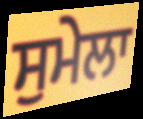
ਸੁਮੇਲਾ